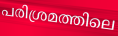
പരിശ്രമത്തിലെ